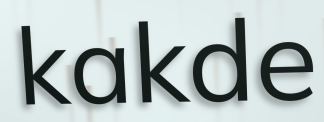
kakde